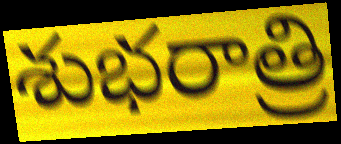
శుభరాత్రి